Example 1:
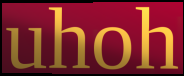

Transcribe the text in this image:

uhoh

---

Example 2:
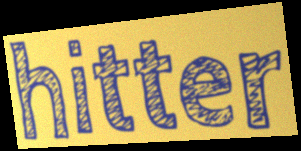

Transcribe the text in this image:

hitter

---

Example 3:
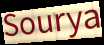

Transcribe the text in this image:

Sourya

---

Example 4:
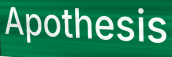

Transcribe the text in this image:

Apothesis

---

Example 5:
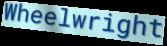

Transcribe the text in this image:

Wheelwright